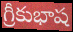
గ్రీకుభాష